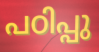
പഠിപ്പു